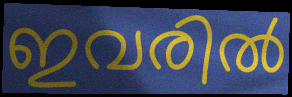
ഇവരിൽ